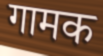
गामक